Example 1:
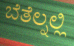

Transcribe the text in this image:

ಬೆತೆಲ್ನಲ್ಲಿ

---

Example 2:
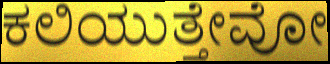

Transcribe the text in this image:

ಕಲಿಯುತ್ತೇವೋ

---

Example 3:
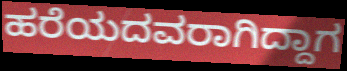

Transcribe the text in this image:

ಹರೆಯದವರಾಗಿದ್ದಾಗ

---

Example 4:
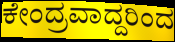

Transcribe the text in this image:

ಕೇಂದ್ರವಾದ್ದರಿಂದ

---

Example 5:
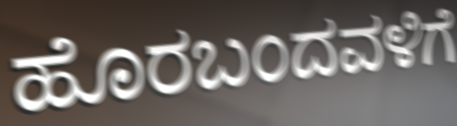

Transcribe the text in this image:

ಹೊರಬಂದವಳಿಗೆ